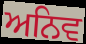
ਅਨਿਵ